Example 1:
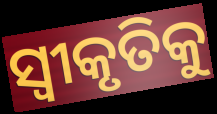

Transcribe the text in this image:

ସ୍ୱୀକୃତିକୁ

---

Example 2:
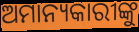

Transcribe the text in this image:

ଅମାନ୍ୟକାରୀଙ୍କୁ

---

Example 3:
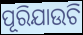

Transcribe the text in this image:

ପୂରିଯାଉଚି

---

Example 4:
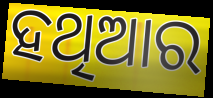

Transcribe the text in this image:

ହଥିଆର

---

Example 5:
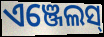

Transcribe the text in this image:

ଏଞ୍ଜେଲସ୍